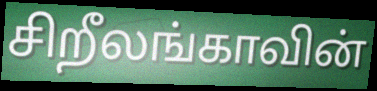
சிறீலங்காவின்